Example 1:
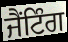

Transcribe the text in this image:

ਜੈਂਟਿੰਗ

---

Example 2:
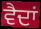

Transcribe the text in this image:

ਵੈਦਾਂ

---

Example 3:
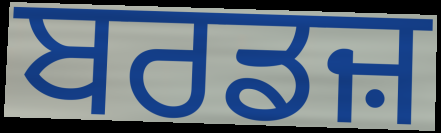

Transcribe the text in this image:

ਬਰਡਜ਼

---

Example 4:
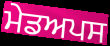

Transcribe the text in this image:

ਮੇਡਅਪਸ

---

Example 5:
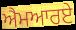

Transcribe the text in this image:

ਐਮਆਰਏ